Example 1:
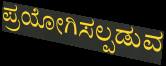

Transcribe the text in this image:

ಪ್ರಯೋಗಿಸಲ್ಪಡುವ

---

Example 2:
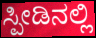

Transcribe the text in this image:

ಸ್ಪೀಡಿನಲ್ಲಿ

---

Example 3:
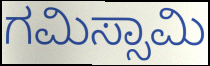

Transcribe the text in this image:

ಗಮಿಸ್ಸಾಮಿ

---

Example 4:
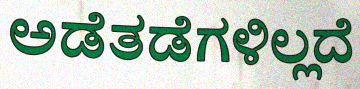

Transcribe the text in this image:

ಅಡೆತಡೆಗಳಿಲ್ಲದೆ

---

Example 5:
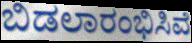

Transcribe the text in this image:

ಬಿಡಲಾರಂಭಿಸಿವೆ